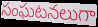
సంఘటనలుగా